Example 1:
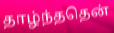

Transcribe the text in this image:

தாழ்ந்ததென்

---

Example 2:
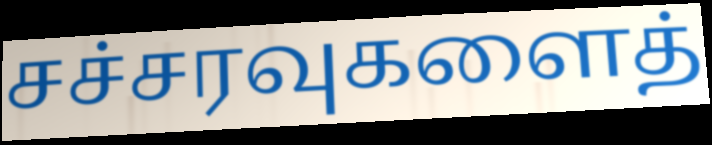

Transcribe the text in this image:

சச்சரவுகளைத்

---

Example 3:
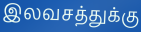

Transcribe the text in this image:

இலவசத்துக்கு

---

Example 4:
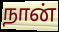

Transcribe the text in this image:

நான்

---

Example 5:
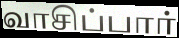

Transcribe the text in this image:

வாசிப்பார்